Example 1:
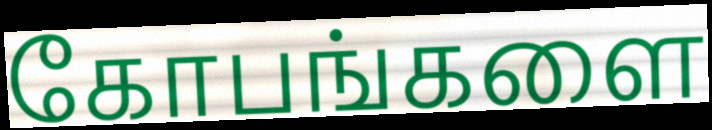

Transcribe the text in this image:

கோபங்களை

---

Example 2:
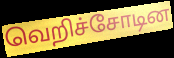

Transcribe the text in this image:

வெறிச்சோடின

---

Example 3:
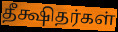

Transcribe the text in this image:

தீக்ஷிதர்கள்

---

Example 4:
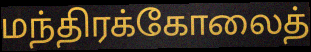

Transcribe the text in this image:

மந்திரக்கோலைத்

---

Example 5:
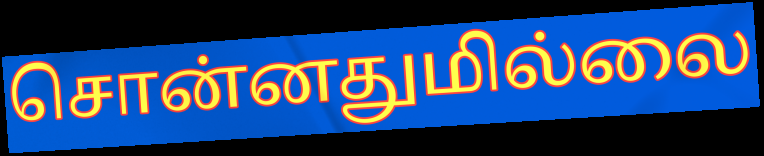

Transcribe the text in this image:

சொன்னதுமில்லை